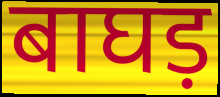
बाघड़